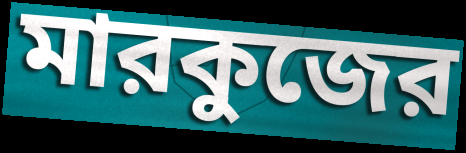
মারকুজের